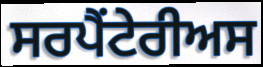
ਸਰਪੈਂਟੇਰੀਅਸ